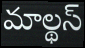
మాల్థస్